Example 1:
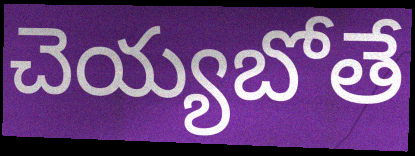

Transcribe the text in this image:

చెయ్యబోతే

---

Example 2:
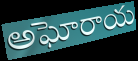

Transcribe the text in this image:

అఘోరాయ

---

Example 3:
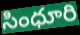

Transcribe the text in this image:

సింధూరి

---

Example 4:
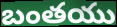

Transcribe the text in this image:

బంతయు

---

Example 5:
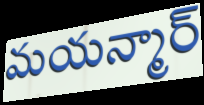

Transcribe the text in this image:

మయన్మార్